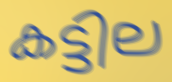
കട്ടില